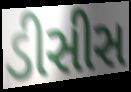
ડીસીસ